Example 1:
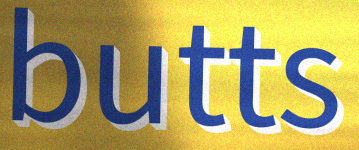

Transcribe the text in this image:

butts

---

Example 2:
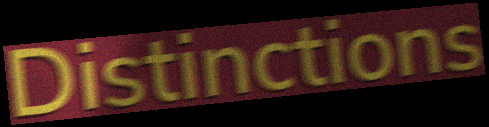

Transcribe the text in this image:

Distinctions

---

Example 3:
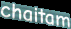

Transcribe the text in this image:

chaitam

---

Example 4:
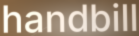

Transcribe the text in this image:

handbill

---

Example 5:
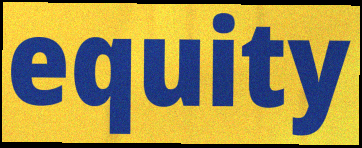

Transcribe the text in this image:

equity